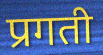
प्रगती